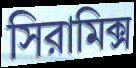
সিরামিক্স